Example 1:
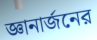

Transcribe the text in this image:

জ্ঞানার্জনের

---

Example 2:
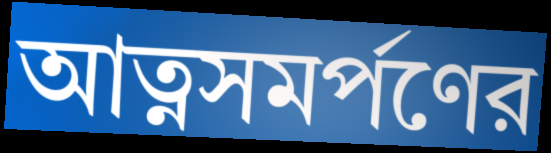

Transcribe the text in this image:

আত্নসমর্পণের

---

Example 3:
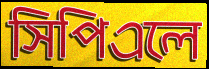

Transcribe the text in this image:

সিপিএলে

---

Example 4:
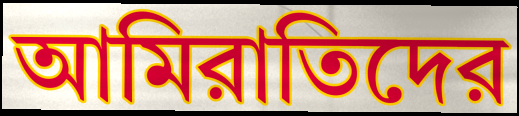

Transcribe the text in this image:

আমিরাতিদের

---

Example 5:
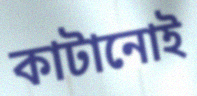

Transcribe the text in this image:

কাটানোই